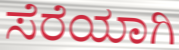
ಸೆರೆಯಾಗಿ